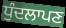
ਧੁੰਦਲਾਪਣ